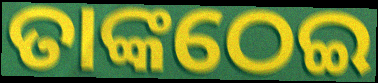
ତାଙ୍କଠେଇ